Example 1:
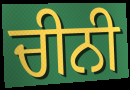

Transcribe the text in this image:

ਚੀਨੀ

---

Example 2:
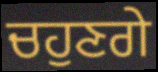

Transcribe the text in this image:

ਚਹੁਣਗੇ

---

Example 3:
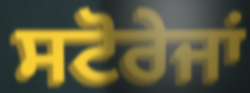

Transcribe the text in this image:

ਸਟੋਰੇਜਾਂ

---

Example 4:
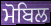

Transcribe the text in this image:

ਮੋਬਿਲ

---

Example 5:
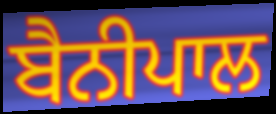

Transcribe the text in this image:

ਬੈਨੀਪਾਲ